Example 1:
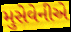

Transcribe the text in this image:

મુસેવેનીએ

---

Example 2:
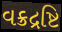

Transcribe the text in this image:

વક્રદ્રષ્ટિ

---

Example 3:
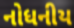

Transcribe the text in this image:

નોધનીય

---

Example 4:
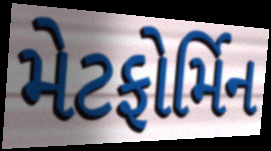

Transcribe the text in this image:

મેટફોર્મિન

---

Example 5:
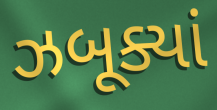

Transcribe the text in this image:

ઝબૂક્યાં